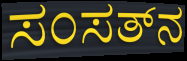
ಸಂಸತ್‌ನ